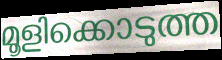
മൂളിക്കൊടുത്ത